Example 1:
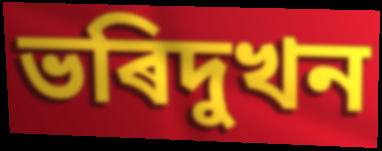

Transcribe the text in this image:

ভৰিদুখন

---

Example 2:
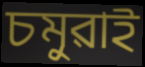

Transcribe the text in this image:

চমুৱাই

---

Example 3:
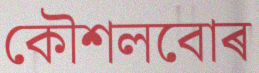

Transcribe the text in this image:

কৌশলবোৰ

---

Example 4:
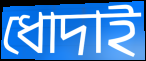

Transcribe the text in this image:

ধোদাই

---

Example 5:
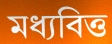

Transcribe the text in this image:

মধ্যবিত্ত